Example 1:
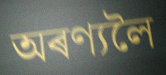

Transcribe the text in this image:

অৰণ্যলৈ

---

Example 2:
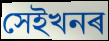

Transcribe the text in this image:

সেইখনৰ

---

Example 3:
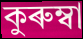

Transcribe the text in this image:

কুৰুম্বা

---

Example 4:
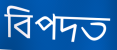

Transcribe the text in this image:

বিপদত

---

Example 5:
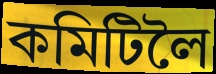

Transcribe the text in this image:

কমিটিলৈ